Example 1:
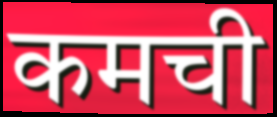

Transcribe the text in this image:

कमची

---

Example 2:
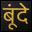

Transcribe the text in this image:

बूंदे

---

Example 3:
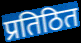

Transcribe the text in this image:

प्रतिठित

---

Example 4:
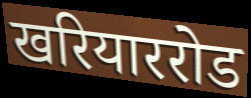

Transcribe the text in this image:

खरियाररोड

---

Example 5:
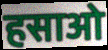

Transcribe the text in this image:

हसाओ